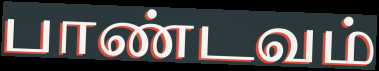
பாண்டவம்